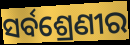
ସର୍ବଶ୍ରେଣୀର